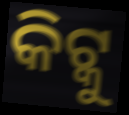
କିଟ୍କୁ